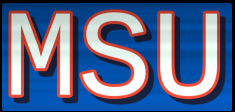
MSU